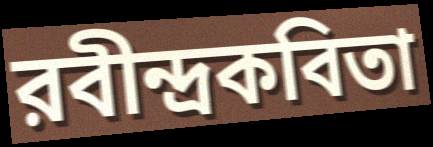
রবীন্দ্রকবিতা